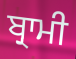
ਬ੍ਰਾਮੀ